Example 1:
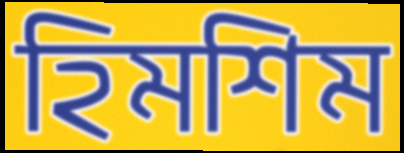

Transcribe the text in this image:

হিমশিম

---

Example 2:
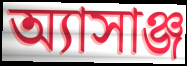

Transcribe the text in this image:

অ্যাসাঞ্জ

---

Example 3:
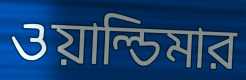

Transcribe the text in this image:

ওয়াল্ডিমার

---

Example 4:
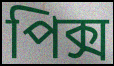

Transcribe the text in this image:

পিক্স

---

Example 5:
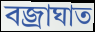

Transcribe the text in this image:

বজ্রাঘাত